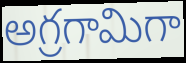
అగ్రగామిగా